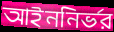
আইননির্ভর